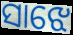
ସାଝେ